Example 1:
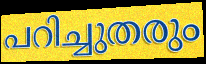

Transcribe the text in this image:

പറിച്ചുതരും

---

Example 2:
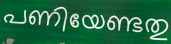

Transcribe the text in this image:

പണിയേണ്ടതു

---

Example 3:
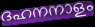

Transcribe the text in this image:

ദഹനനാളം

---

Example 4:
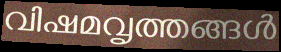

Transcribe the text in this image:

വിഷമവൃത്തങ്ങൾ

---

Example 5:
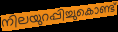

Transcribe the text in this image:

നിലയുറപ്പിച്ചുകൊണ്ട്